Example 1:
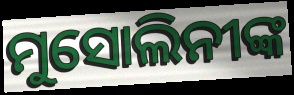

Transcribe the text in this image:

ମୁସୋଲିନୀଙ୍କ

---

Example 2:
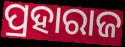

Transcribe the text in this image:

ପ୍ରହାରାଜ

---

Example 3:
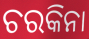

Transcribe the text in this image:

ଚରକିନା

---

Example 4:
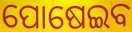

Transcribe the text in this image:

ପୋଷେଇବ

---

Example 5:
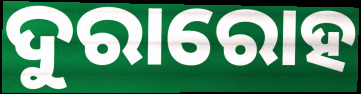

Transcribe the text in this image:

ଦୁରାରୋହ